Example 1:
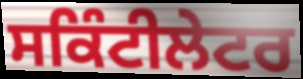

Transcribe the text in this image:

ਸਕਿੰਟੀਲੇਟਰ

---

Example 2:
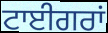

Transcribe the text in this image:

ਟਾਈਗਰਾਂ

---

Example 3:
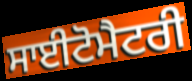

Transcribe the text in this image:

ਸਾਈਟੋਮੈਟਰੀ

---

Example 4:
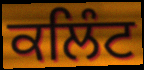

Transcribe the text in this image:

ਕਲਿੰਟ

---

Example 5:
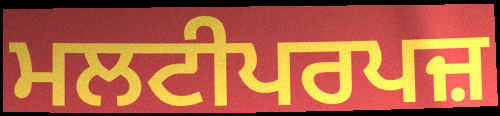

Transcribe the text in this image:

ਮਲਟੀਪਰਪਜ਼